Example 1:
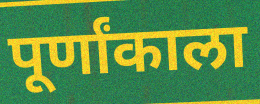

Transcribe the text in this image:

पूर्णांकाला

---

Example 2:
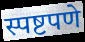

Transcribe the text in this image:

स्पष्टपणे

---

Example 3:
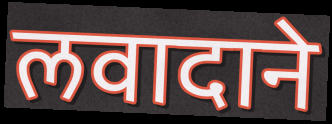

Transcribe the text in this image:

लवादाने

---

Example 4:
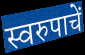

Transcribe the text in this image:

स्वरुपाचें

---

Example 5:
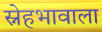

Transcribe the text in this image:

स्नेहभावाला